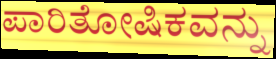
ಪಾರಿತೋಷಿಕವನ್ನು